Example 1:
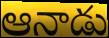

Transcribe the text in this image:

ఆనాడు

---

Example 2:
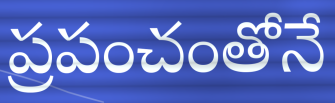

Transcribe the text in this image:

ప్రపంచంతోనే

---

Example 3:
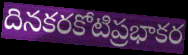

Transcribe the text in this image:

దినకరకోటిప్రభాకర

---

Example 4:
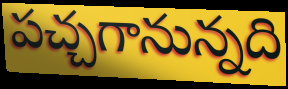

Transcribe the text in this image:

పచ్చగానున్నది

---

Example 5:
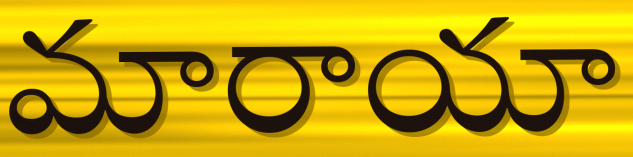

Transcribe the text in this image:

మారాయా